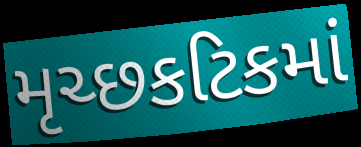
મૃચ્છકટિકમાં